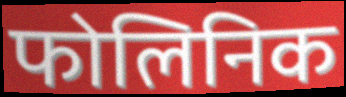
फोलिनिक